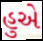
હુએ